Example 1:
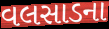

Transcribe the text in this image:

વલસાડના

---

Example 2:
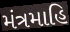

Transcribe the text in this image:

મંત્રમાહિ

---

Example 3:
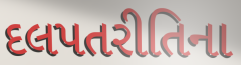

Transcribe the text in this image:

દલપતરીતિના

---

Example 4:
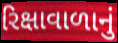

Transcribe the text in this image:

રિક્ષાવાળાનું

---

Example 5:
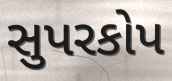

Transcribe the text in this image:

સુપરકોપ